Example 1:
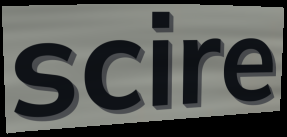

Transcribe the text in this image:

scire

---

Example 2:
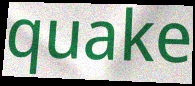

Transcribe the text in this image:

quake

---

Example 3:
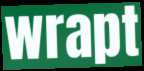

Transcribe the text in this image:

wrapt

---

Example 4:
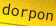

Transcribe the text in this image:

dorpon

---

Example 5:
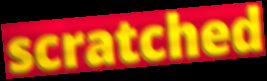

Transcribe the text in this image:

scratched